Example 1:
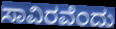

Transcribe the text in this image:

ಸಾವಿರವೆಂದು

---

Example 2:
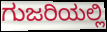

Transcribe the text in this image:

ಗುಜರಿಯಲ್ಲಿ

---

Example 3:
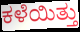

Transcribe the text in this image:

ಕಳೆಯಿತ್ತು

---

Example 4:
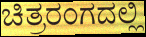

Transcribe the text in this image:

ಚಿತ್ರರಂಗದಲ್ಲಿ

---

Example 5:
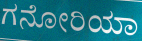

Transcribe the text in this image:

ಗನೋರಿಯಾ